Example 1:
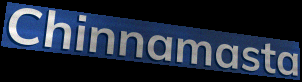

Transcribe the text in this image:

Chinnamasta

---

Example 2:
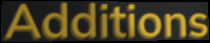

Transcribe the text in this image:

Additions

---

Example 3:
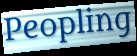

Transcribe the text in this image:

Peopling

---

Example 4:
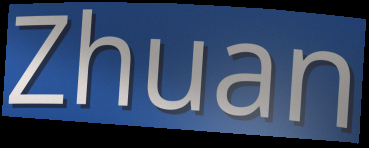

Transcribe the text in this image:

Zhuan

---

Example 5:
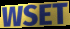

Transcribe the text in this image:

WSET